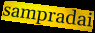
sampradai